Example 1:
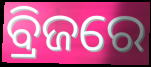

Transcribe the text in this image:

ବ୍ରିଜରେ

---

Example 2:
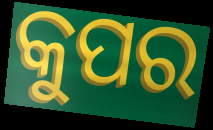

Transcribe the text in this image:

କୁପର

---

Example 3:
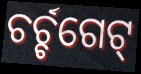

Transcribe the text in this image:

ଚର୍ଚ୍ଚଗେଟ୍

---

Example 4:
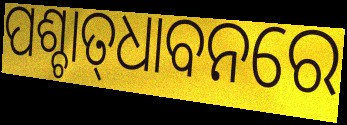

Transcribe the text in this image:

ପଶ୍ଚାତ୍‍ଧାବନରେ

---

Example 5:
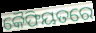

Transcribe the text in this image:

କୈଫିୟତରେ